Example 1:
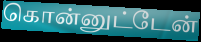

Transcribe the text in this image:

கொன்னுட்டேன்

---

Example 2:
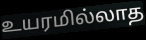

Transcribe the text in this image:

உயரமில்லாத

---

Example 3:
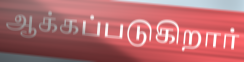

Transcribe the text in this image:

ஆக்கப்படுகிறார்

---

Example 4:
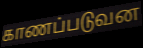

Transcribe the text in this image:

காணப்படுவன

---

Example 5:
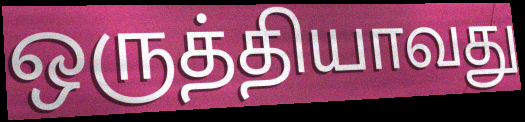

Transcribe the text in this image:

ஒருத்தியாவது